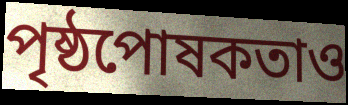
পৃষ্ঠপোষকতাও